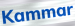
Kammar